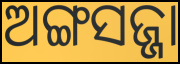
ଅଙ୍ଗସଜ୍ଜା